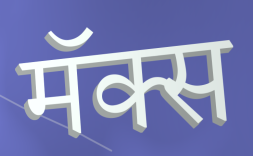
मॅक्स